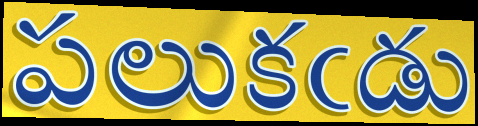
పలుకఁడు